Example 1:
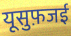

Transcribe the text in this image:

यूसुफ़जई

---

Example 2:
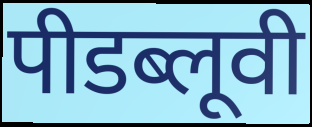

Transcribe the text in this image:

पीडब्लूवी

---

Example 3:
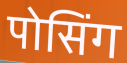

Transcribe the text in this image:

पोसिंग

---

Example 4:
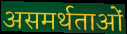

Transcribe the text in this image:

असमर्थताओं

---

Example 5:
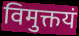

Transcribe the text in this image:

विमुक्तयं